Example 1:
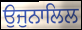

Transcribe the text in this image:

ਉਜੁਨਾਲਿਲ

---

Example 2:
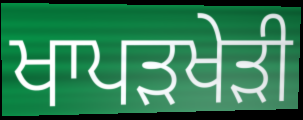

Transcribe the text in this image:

ਖਾਪੜਖੇੜੀ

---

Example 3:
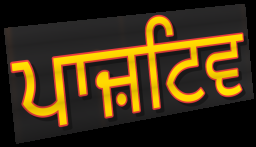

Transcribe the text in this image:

ਪਾਜ਼ਟਿਵ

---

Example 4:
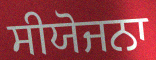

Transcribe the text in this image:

ਸੀਯੋਜਨਾ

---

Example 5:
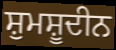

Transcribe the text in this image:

ਸ਼ੁਮਸ਼ੂਦੀਨ